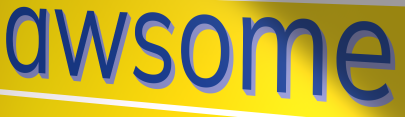
awsome